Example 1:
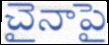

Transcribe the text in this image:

చైనాపై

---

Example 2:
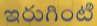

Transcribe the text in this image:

ఇరుగింటి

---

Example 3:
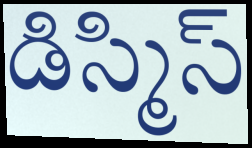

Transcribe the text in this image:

డిస్మిస్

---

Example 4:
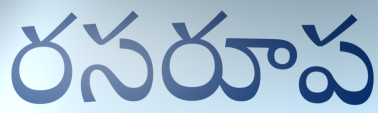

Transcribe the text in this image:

రసరూప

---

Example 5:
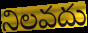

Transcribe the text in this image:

నిలవదు